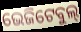
ଭେଜିଟେବୁଲ୍